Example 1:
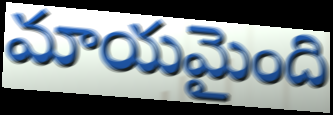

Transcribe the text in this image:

మాయమైంది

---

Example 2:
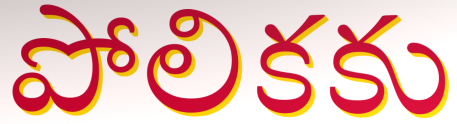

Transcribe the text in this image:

పోలికకు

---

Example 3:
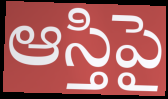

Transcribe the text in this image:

ఆస్తిపై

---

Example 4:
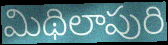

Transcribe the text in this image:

మిథిలాపురి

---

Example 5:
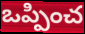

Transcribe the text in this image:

ఒప్పించ